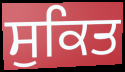
ਸੁਕਿਤ